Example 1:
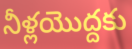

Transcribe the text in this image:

నీళ్లయొద్దకు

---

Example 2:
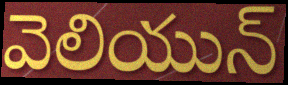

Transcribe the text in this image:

వెలియున్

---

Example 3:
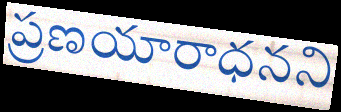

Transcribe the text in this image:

ప్రణయారాధనని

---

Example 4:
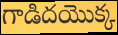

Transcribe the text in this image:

గాడిదయొక్క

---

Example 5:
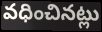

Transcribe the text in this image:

వధించినట్లు